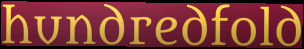
hundredfold